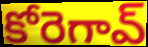
కోరెగావ్